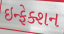
ઇન્ફેક્શન